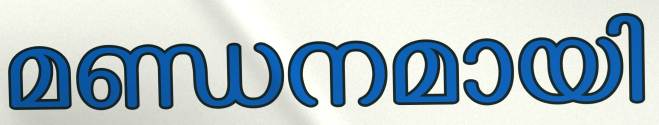
മണ്ഡനമായി